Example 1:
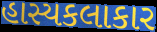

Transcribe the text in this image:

હાસ્યકલાકાર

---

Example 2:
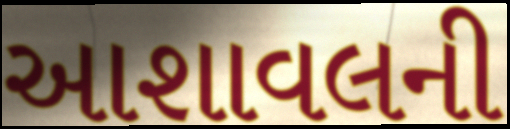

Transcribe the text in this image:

આશાવલની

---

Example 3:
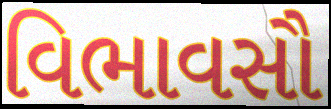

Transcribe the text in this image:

વિભાવસૌ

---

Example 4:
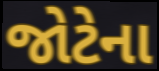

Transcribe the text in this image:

જોટેના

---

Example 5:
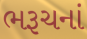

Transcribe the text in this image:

ભરૂચનાં